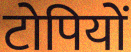
टोपियों